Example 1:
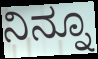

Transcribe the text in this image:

ನಿನ್ನೂ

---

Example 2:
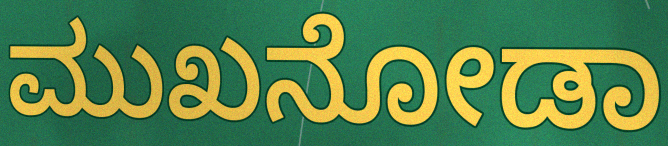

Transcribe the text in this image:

ಮುಖನೋಡಾ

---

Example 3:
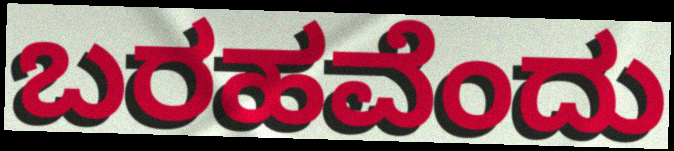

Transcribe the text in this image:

ಬರಹವೆಂದು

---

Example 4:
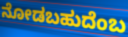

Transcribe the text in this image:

ನೋಡಬಹುದೆಂಬ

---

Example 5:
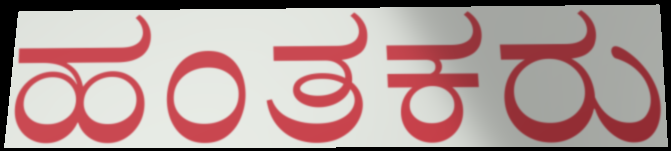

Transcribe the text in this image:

ಹಂತಕರು